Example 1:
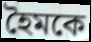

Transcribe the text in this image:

হৈমকে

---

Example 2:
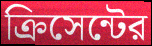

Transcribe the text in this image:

ক্রিসেন্টের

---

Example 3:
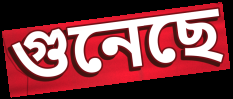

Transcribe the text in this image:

গুনেছে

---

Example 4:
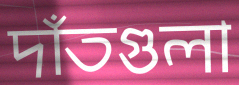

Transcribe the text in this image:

দাঁতগুলা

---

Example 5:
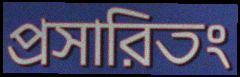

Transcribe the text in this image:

প্রসারিতং